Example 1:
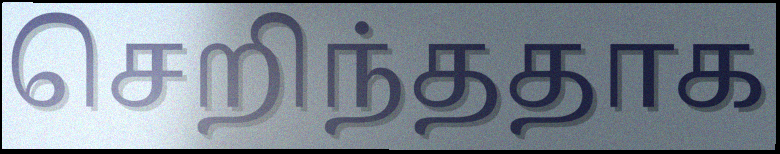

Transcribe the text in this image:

செறிந்ததாக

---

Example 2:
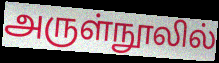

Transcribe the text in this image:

அருள்நூலில்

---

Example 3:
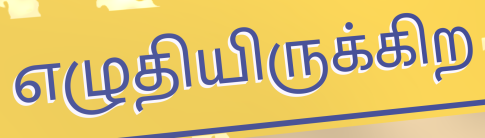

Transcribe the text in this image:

எழுதியிருக்கிற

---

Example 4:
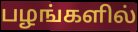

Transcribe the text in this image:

பழங்களில்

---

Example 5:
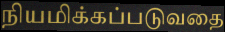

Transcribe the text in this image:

நியமிக்கப்படுவதை